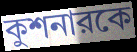
কুশনারকে